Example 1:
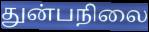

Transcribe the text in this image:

துன்பநிலை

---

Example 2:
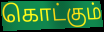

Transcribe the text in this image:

கொட்கும்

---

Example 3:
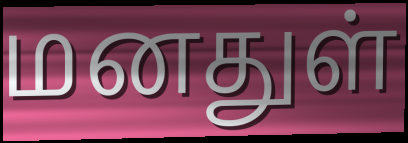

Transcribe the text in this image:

மனதுள்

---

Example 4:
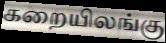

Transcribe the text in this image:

கறையிலங்கு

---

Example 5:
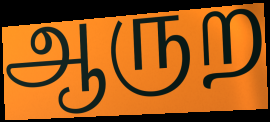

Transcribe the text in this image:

ஆருற